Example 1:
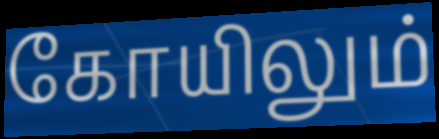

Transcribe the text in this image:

கோயிலும்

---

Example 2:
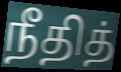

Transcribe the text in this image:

நீதித்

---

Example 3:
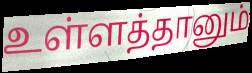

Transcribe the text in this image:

உள்ளத்தானும்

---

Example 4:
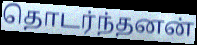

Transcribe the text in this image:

தொடர்ந்தனன்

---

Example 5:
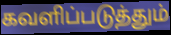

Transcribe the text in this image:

கவளிப்படுத்தும்